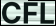
CFL